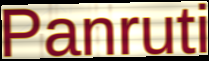
Panruti